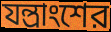
যন্ত্রাংশের